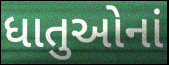
ધાતુઓનાં